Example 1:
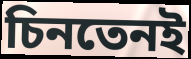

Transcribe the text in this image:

চিনতেনই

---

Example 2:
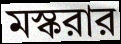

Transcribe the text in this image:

মস্করার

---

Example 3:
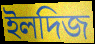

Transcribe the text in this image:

ইলদিজ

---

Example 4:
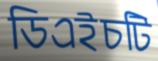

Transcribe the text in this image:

ডিএইচটি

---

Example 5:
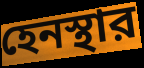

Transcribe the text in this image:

হেনস্থার